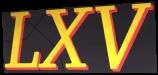
LXV